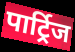
पार्ट्रिज